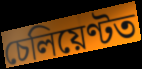
চেলিয়েণ্টত